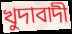
খুদাবাদী